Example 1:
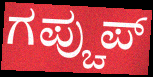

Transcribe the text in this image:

ಗಪ್ಚುಪ್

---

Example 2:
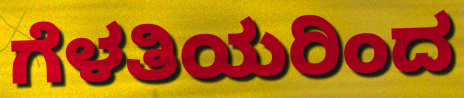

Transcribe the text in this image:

ಗೆಳತಿಯರಿಂದ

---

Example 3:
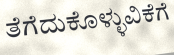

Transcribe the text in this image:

ತೆಗೆದುಕೊಳ್ಳುವಿಕೆಗೆ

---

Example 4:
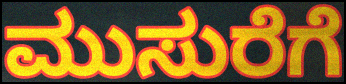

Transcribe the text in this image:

ಮುಸುರೆಗೆ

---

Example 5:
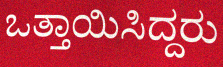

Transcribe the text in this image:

ಒತ್ತಾಯಿಸಿದ್ದರು